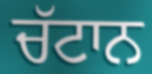
ਚੱਟਾਨ